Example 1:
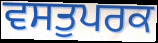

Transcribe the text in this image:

ਵਸਤੁਪਰਕ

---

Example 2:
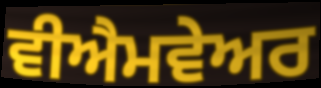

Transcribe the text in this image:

ਵੀਐਮਵੇਅਰ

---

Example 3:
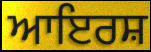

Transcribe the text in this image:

ਆਇਰਸ਼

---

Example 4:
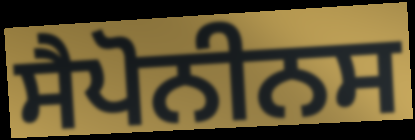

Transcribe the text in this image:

ਸੈਪੋਨੀਨਸ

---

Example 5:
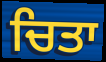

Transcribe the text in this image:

ਚਿਤਾ